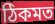
ঠিকমত